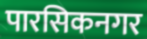
पारसिकनगर